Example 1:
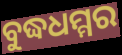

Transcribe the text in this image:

ବୁଦ୍ଧଧମ୍ମର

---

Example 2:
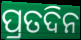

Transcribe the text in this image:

ପ୍ରତଦିନ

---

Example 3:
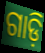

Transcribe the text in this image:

ଗାଡ଼ି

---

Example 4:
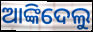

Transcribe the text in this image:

ଆଙ୍କିଦେଲୁ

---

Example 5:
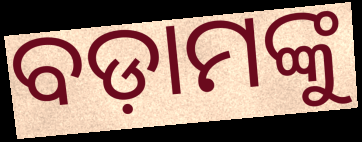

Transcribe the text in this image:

ବଡ଼ାମଙ୍କୁ